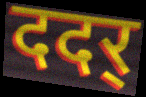
ददर्